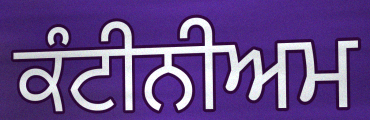
ਕੰਟੀਨੀਅਮ